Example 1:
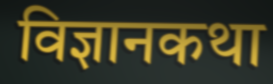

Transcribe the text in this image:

विज्ञानकथा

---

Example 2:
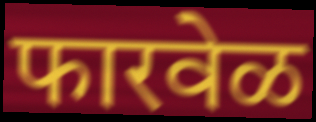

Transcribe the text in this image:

फारवेळ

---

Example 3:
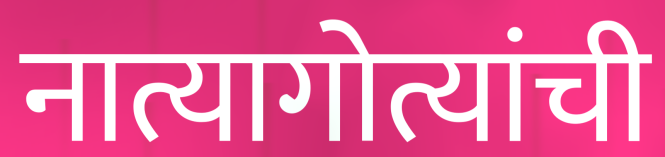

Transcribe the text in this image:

नात्यागोत्यांची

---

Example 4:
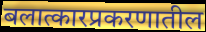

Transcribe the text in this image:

बलात्कारप्रकरणातील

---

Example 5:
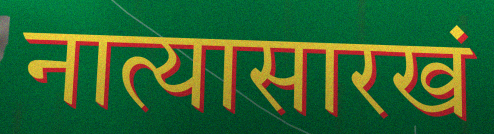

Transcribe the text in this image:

नात्यासारखं